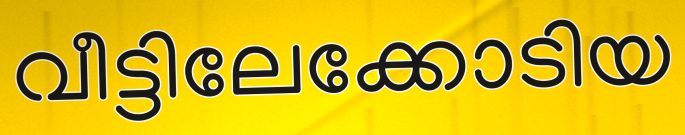
വീട്ടിലേക്കോടിയ